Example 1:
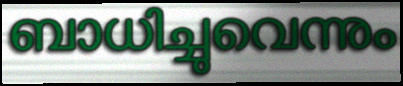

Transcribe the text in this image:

ബാധിച്ചുവെന്നും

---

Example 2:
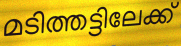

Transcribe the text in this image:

മടിത്തട്ടിലേക്ക്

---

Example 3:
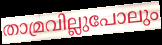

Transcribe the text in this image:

താമ്രവില്ലുപോലും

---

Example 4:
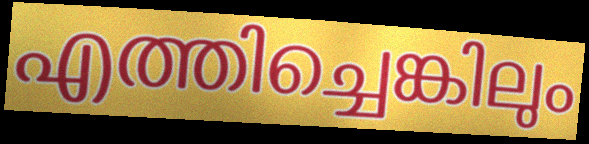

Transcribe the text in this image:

എത്തിച്ചെങ്കിലും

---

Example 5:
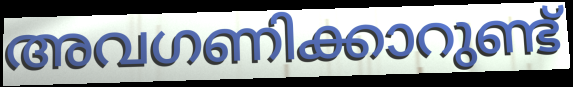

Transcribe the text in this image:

അവഗണിക്കാറുണ്ട്